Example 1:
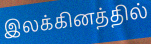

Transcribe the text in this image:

இலக்கினத்தில்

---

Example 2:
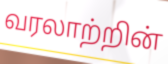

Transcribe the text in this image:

வரலாற்றின்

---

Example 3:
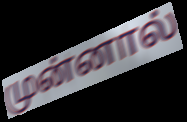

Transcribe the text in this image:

முன்னால்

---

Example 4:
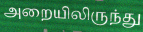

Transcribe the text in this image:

அறையிலிருந்து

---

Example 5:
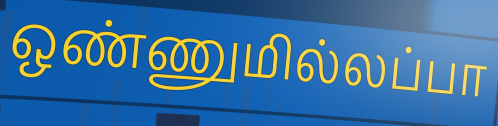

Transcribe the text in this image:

ஒண்ணுமில்லப்பா